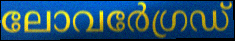
ലോവർേഗ്രഡ്